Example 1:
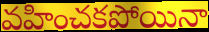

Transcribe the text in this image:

వహించకపోయినా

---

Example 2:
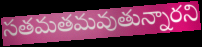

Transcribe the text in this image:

సతమతమవుతున్నారని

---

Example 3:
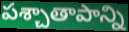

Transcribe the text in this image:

పశ్చాతాపాన్ని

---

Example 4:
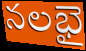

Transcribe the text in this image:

నలభై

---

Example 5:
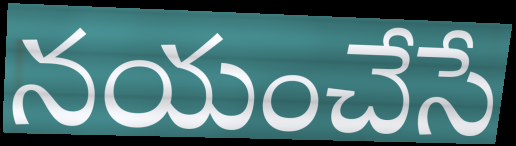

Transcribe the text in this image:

నయంచేసే